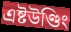
এষ্টউণ্ডিং